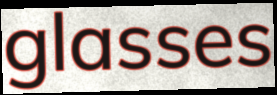
glasses